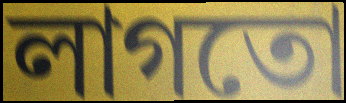
লাগতো